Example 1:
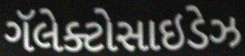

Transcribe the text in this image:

ગૅલેક્ટોસાઇડેઝ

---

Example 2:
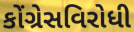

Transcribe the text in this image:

કોંગ્રેસવિરોધી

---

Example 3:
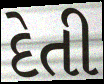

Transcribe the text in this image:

દેતી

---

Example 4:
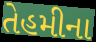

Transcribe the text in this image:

તેહમીના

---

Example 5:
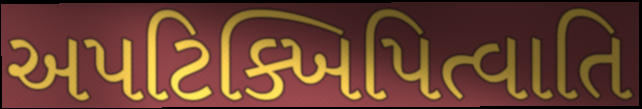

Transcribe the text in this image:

અપટિક્ખિપિત્વાતિ